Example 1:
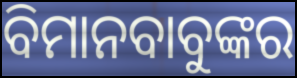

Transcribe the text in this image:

ବିମାନବାବୁଙ୍କର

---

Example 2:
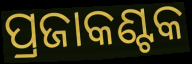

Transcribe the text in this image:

ପ୍ରଜାକଣ୍ଟକ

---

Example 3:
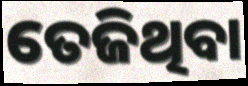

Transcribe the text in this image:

ତେଜିଥିବା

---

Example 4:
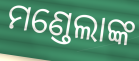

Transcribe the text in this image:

ମଣ୍ଡେଲାଙ୍କ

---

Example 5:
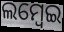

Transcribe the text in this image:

ଲମ୍ଵେଇ